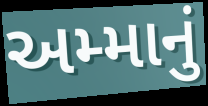
અમ્માનું